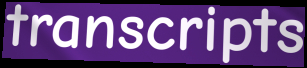
transcripts